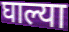
घाल्या